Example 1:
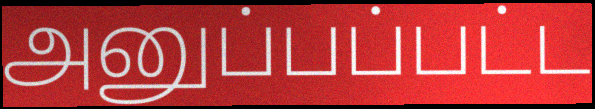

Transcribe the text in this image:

அனுப்பப்பட்ட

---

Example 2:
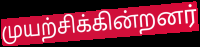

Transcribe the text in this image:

முயற்சிக்கின்றனர்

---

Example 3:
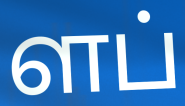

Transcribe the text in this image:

ளப்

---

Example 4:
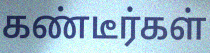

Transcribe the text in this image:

கண்டீர்கள்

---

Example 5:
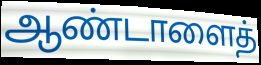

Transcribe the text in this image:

ஆண்டாளைத்